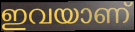
ഇവയാണ്